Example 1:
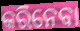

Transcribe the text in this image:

କରିନେବା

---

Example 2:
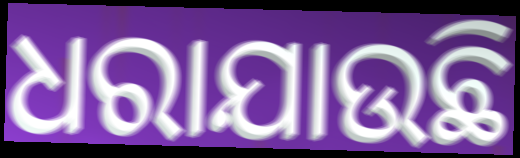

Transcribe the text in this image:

ଧରାଯାଉଛି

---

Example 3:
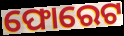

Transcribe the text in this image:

ଫୋରେଟ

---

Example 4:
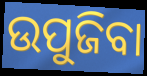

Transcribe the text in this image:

ଉପୁଜିବା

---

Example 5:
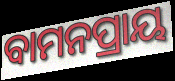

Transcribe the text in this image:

ବାମନପ୍ରାୟ